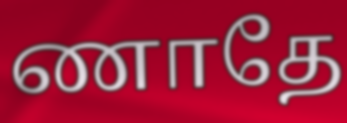
ணாதே